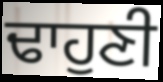
ਢਾਹੁਣੀ